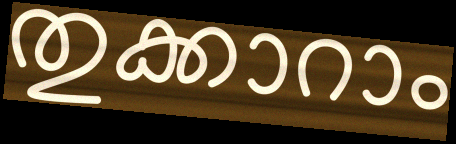
തുക്കാറാം